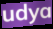
udya